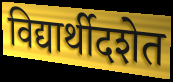
विद्यार्थीदशेत